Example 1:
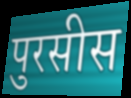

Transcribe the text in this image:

पुरसीस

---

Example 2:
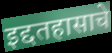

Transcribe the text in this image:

इद्दतहासाचे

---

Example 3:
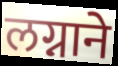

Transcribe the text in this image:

लग्नाने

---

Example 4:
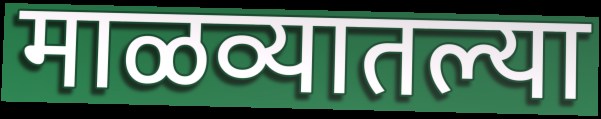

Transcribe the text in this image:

माळव्यातल्या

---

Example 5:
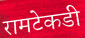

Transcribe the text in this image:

रामटेकडी